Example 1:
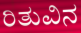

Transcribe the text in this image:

ರಿತುವಿನ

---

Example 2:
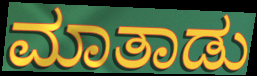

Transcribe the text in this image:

ಮಾತಾಡು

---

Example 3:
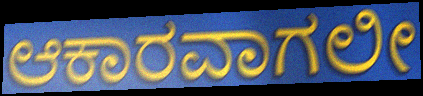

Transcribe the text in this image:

ಆಕಾರವಾಗಲೀ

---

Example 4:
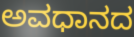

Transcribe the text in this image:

ಅವಧಾನದ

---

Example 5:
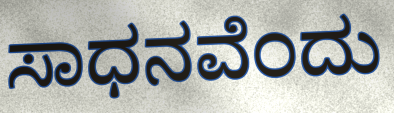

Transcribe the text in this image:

ಸಾಧನವೆಂದು